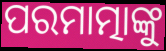
ପରମାତ୍ମାଙ୍କୁ